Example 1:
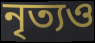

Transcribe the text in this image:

নৃত্যও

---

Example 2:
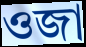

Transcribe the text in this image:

ওজা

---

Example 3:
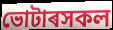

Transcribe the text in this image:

ভোটাৰসকল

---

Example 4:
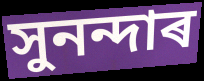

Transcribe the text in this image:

সুনন্দাৰ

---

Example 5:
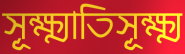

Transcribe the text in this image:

সূক্ষ্মাতিসূক্ষ্ম